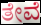
ತೇವೆ